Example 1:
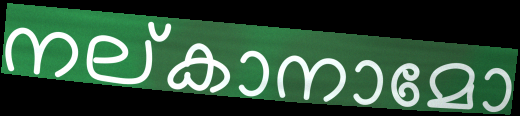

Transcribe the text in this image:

നല്കാനാമോ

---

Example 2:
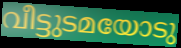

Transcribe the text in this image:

വീട്ടുടമയോടു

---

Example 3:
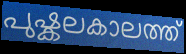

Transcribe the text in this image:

പുഷ്കലകാലത്ത്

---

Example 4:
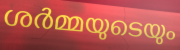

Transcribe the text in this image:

ശർമ്മയുടെയും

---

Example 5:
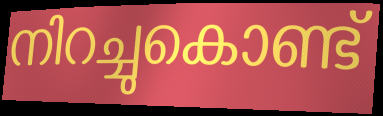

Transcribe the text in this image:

നിറച്ചുകൊണ്ട്